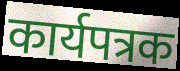
कार्यपत्रक